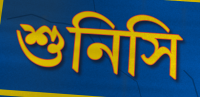
শুনিসি